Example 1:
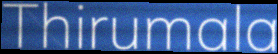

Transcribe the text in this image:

Thirumala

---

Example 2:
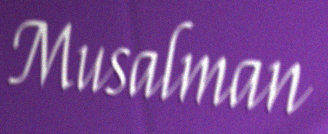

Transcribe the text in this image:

Musalman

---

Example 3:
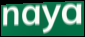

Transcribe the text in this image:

naya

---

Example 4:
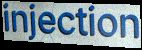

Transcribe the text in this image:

injection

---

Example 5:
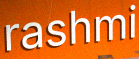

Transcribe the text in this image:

rashmi